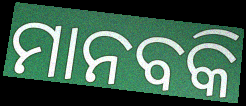
ମାନବକି